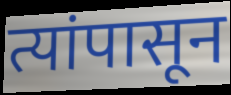
त्यांपासून